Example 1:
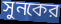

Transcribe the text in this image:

সুনকের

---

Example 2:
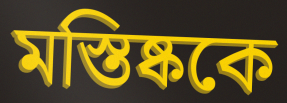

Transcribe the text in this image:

মস্তিষ্ককে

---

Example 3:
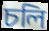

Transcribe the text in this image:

চলি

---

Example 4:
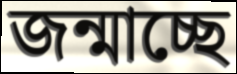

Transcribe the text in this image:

জন্মাচ্ছে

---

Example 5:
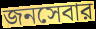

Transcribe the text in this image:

জনসেবার